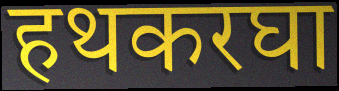
हथकरघा